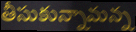
తీసుకున్నామన్న